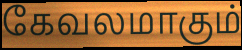
கேவலமாகும்